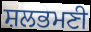
ਸ਼ਲਭਮਣੀ